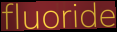
fluoride